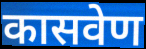
कासवेण